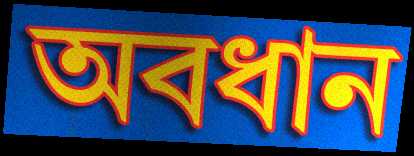
অবধান